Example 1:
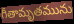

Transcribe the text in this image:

గీతామృతమును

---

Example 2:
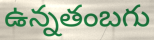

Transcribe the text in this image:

ఉన్నతంబగు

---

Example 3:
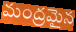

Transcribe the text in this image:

మంద్రమైన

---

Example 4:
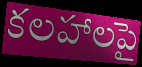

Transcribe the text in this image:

కలహాలపై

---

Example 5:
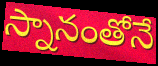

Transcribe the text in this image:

స్నానంతోనే